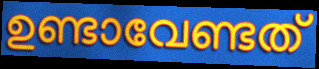
ഉണ്ടാവേണ്ടത്